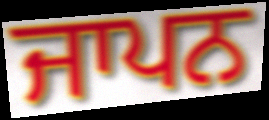
ਜਾਪਨ